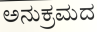
ಅನುಕ್ರಮದ